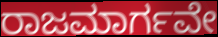
ರಾಜಮಾರ್ಗವೇ